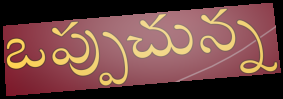
ఒప్పుచున్న